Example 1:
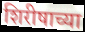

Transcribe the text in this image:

शिरीषाच्या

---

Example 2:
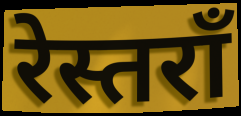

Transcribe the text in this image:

रेस्तराँ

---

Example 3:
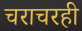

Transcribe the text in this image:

चराचरही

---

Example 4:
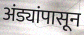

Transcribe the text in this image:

अंड्यांपासून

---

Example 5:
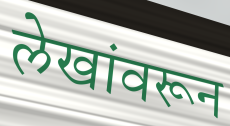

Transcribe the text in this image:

लेखांवरून